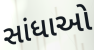
સાંધાઓ